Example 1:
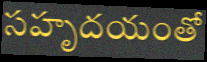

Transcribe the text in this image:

సహృదయంతో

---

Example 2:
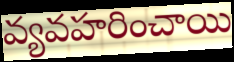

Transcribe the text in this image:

వ్యవహరించాయి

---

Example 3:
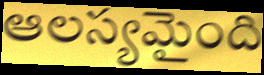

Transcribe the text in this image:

ఆలస్యమైంది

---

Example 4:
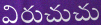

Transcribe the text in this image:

విరుచుచు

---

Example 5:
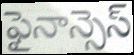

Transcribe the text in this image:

ఫైనాన్సెస్